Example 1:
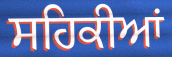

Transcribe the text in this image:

ਸਹਿਕੀਆਂ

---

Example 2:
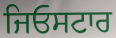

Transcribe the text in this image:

ਜਿਓਸਟਾਰ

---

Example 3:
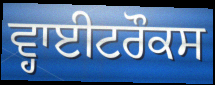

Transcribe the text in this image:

ਵ੍ਹਾਈਟਰੌਕਸ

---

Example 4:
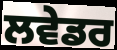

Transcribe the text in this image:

ਲਵੇਡਰ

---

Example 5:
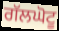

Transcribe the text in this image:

ਗੱਲਘੋਟੂ